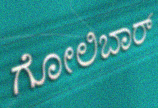
ಗೋಲಿಬಾರ್